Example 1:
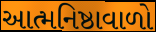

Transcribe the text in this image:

આત્મનિષ્ઠાવાળો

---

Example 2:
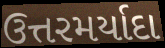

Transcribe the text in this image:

ઉત્તરમર્યાદા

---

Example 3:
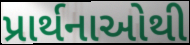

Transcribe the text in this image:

પ્રાર્થનાઓથી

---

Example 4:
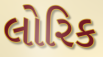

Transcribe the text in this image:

લોરિક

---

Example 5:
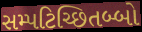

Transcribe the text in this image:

સમ્પટિચ્છિતબ્બો